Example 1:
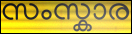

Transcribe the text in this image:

സംസ്കാര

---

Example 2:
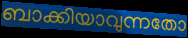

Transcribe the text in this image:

ബാക്കിയാവുന്നതോ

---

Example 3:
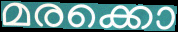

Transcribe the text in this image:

മരക്കൊ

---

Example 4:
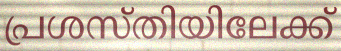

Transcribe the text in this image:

പ്രശസ്തിയിലേക്ക്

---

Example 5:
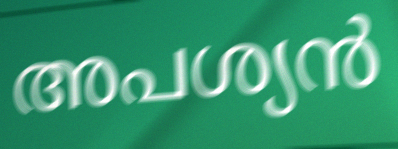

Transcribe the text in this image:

അപശ്യൻ